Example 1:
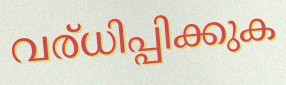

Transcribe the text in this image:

വര്ധിപ്പിക്കുക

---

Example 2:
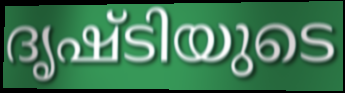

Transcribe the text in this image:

ദൃഷ്ടിയുടെ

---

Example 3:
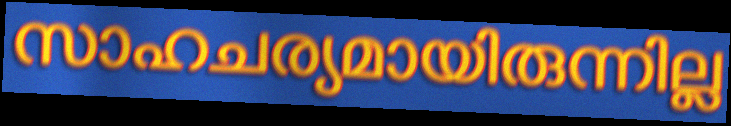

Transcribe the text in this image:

സാഹചര്യമായിരുന്നില്ല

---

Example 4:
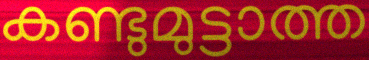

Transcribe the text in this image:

കണ്ടുമുട്ടാത്ത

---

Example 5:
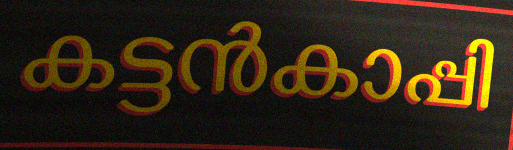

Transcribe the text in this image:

കട്ടൻകാപ്പി